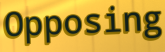
Opposing